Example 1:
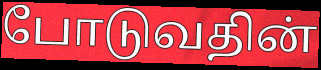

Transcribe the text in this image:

போடுவதின்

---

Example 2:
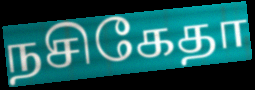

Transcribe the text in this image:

நசிகேதா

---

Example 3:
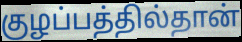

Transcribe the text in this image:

குழப்பத்தில்தான்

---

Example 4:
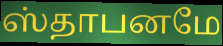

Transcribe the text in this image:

ஸ்தாபனமே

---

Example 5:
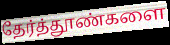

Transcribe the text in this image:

தேர்த்தூண்களை